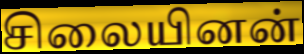
சிலையினன்